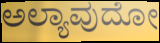
ಅಲ್ಯಾವುದೋ